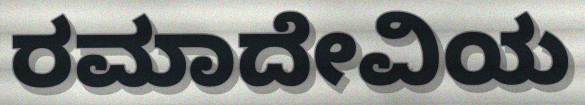
ರಮಾದೇವಿಯ